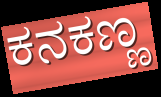
ಕನಕಣ್ಣ